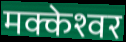
मक्केश्वर